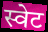
स्वेट